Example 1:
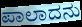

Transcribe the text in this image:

ಪಾಲಾದನು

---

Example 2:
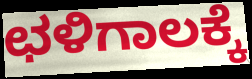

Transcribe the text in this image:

ಛಳಿಗಾಲಕ್ಕೆ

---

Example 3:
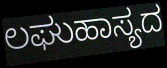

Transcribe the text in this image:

ಲಘುಹಾಸ್ಯದ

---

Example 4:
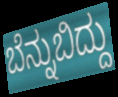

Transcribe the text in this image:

ಬೆನ್ನುಬಿದ್ದು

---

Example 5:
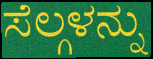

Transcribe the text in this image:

ಸೆಲ್ಗಳನ್ನು